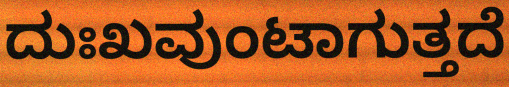
ದುಃಖವುಂಟಾಗುತ್ತದೆ